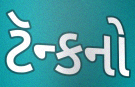
ટૅન્કનો